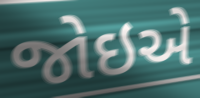
જોઇએ